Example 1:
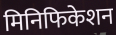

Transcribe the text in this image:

मिनिफिकेशन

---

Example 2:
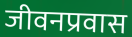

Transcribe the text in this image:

जीवनप्रवास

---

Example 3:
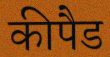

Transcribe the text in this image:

कीपैड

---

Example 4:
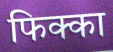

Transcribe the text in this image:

फिक्का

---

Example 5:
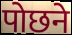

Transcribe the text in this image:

पोछने